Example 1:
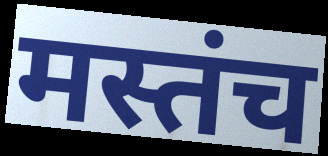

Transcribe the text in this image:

मस्तंच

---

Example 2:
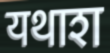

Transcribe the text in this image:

यथाश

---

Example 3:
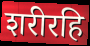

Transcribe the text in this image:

शरीरहि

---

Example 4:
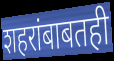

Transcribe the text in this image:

शहरांबाबतही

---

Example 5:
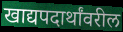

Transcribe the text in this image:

खाद्यपदार्थांवरील